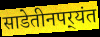
साडेतीनपर्यंत